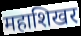
महाशिखर